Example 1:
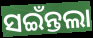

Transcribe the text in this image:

ସଇଁନ୍ତଲା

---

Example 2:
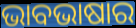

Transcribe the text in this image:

ଭାବଭାଷାର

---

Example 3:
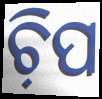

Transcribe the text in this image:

ଚ଼ିପ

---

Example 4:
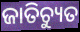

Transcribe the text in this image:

ଜାତିଚ୍ୟୁତ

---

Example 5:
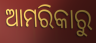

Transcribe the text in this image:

ଆମରିକାରୁ